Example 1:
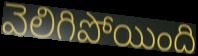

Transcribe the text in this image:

వెలిగిపోయింది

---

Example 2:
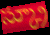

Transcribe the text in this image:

స్క్రూ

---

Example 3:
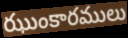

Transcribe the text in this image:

ఝుంకారములు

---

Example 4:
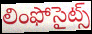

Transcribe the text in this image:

లింఫోసైట్స్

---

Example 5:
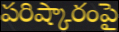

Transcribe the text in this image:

పరిష్కారంపై